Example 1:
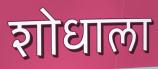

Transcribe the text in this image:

शोधाला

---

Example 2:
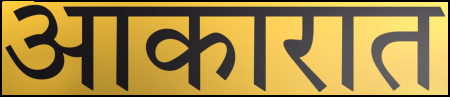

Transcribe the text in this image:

आकारात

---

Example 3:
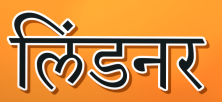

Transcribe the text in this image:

लिंडनर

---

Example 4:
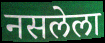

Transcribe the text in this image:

नसलेला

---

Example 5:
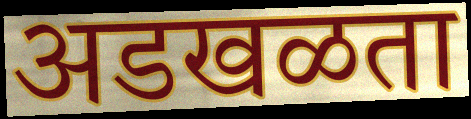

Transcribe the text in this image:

अडखळता